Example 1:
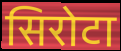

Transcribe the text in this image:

सिरोटा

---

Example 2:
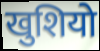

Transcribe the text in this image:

खुशियो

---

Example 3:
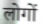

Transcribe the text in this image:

लोगों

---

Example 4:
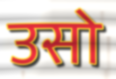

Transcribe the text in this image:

उसो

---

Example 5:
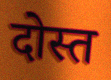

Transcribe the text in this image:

दोस्त